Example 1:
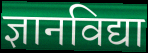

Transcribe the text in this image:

ज्ञानविद्या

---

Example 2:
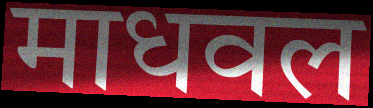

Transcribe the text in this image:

माधवल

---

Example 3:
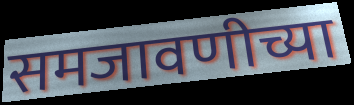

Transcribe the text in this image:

समजावणीच्या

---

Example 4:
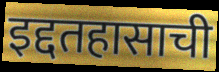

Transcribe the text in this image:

इद्दतहासाची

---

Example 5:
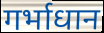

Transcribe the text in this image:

गर्भाधान